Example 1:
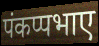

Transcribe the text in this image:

पंकप्पभाए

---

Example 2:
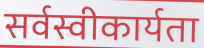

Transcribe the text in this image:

सर्वस्वीकार्यता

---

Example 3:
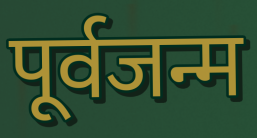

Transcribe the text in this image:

पूर्वजन्म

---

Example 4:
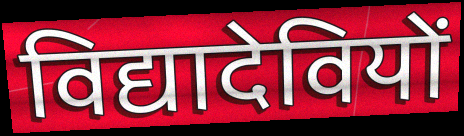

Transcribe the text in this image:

विद्यादेवियों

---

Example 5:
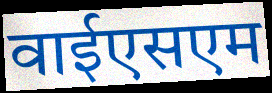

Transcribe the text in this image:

वाईएसएम